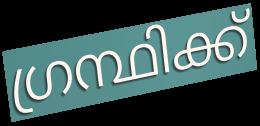
ഗ്രന്ഥിക്ക്